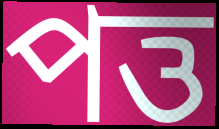
পত্ত